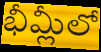
భీమ్లీలో